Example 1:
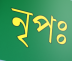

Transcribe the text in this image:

নৃপঃ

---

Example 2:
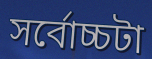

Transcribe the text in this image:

সর্বোচ্চটা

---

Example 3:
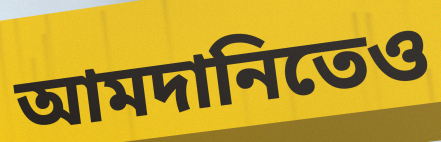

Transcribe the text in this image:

আমদানিতেও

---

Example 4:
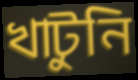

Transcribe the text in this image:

খাটুনি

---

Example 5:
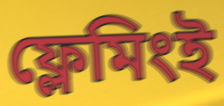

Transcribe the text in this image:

ফ্লেমিংই